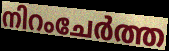
നിറംചേർത്ത